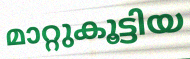
മാറ്റുകൂട്ടിയ